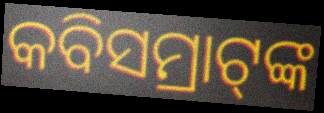
କବିସମ୍ରାଟ୍‌ଙ୍କ